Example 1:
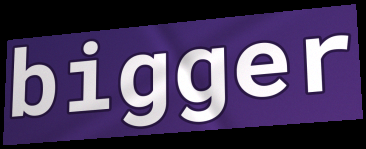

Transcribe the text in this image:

bigger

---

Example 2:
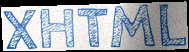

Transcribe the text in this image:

XHTML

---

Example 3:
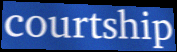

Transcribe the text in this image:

courtship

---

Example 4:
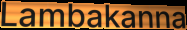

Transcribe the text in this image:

Lambakanna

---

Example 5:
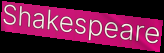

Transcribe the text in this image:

Shakespeare